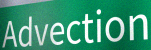
Advection